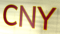
CNY